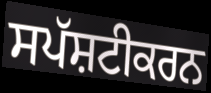
ਸਪੱਸ਼ਟੀਕਰਨ